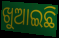
ଖୁଆଇଛି